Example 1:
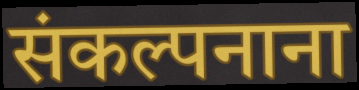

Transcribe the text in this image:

संकल्पनाना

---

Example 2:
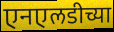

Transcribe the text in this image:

एनएलडीच्या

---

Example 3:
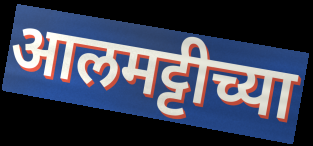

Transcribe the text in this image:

आलमट्टीच्या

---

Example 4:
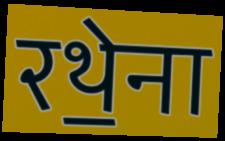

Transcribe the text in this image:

रथे॒ना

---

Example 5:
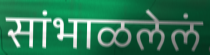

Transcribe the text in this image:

सांभाळलेलं